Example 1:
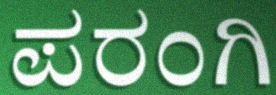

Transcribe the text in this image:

ಪರಂಗಿ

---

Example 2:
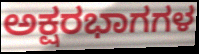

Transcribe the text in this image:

ಅಕ್ಷರಭಾಗಗಳ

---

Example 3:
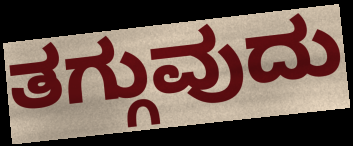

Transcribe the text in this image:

ತಗ್ಗುವುದು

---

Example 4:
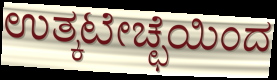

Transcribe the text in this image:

ಉತ್ಕಟೇಚ್ಛೆಯಿಂದ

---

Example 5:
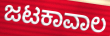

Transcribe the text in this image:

ಜಟಕಾವಾಲ